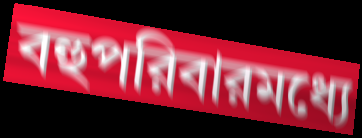
বহুপরিবারমধ্যে